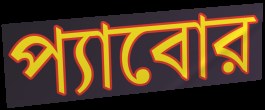
প্যাবোর